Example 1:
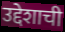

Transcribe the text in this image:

उद्देशाची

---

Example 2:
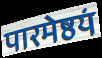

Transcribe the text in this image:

पारमेष्ठयं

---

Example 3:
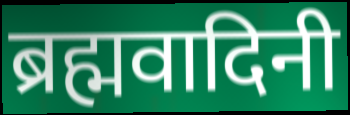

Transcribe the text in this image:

ब्रह्मवादिनी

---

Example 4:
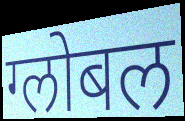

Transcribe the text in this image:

ग्लोबल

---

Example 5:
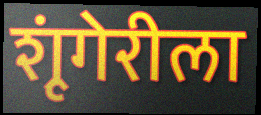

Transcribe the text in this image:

श्रृंगेरीला